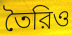
তৈরিও